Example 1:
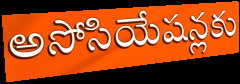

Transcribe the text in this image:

అసోసియేషన్లకు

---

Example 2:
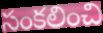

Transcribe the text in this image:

సంకలించి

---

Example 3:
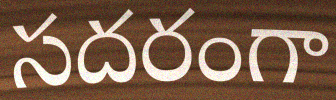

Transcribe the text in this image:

సదరంగా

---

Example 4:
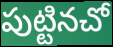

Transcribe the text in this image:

పుట్టినచో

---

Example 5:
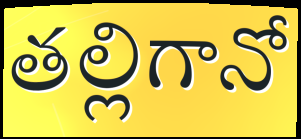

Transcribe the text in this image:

తల్లిగానో